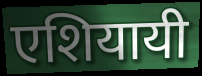
एशियायी